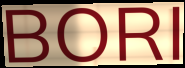
BORI